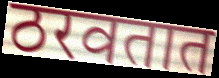
ठरवतात